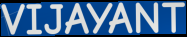
VIJAYANT